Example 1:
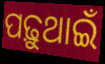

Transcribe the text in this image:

ପଢ଼ୁଥାଇଁ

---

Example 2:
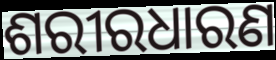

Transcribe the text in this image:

ଶରୀରଧାରଣ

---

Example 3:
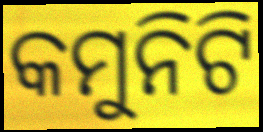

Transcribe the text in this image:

କମୁନିଟି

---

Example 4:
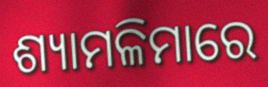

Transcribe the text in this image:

ଶ୍ୟାମଳିମାରେ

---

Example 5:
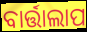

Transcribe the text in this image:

ବାର୍ତ୍ତାଲାପ